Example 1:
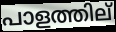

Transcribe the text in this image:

പാളത്തില്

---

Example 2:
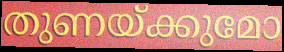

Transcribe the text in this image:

തുണയ്ക്കുമോ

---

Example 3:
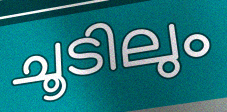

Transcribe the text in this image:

ചൂടിലും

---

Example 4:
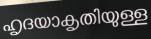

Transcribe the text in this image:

ഹൃദയാകൃതിയുള്ള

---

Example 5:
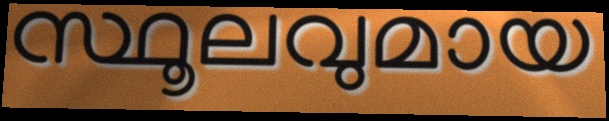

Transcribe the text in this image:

സ്ഥൂലവുമായ